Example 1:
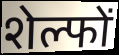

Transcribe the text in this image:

शेल्फों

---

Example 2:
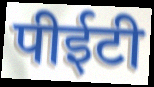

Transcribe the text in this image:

पीईटी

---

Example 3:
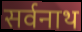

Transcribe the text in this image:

सर्वनाथ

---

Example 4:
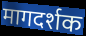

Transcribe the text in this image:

मागदर्शक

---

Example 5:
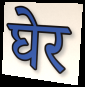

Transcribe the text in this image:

घेर